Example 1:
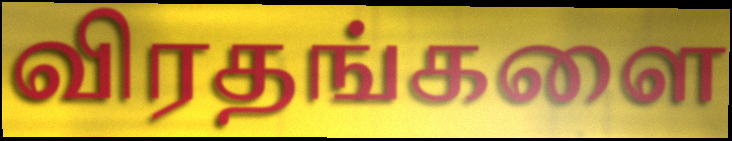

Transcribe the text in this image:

விரதங்களை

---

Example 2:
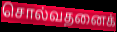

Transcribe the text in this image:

சொல்வதனைக்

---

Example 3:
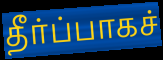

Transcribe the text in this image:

தீர்ப்பாகச்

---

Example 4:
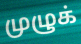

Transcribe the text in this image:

முழுக்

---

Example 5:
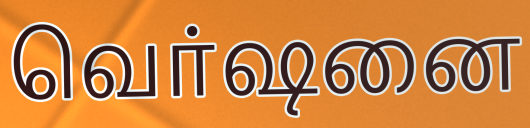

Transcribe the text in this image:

வெர்ஷனை